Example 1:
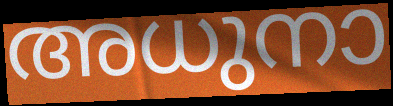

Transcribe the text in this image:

അധുനാ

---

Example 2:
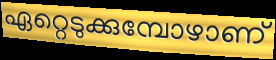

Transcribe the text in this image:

ഏറ്റെടുക്കുമ്പോഴാണ്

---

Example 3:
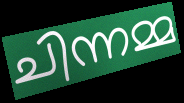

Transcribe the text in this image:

ചിന്നമ്മ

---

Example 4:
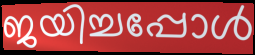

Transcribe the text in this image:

ജയിച്ചപ്പോൾ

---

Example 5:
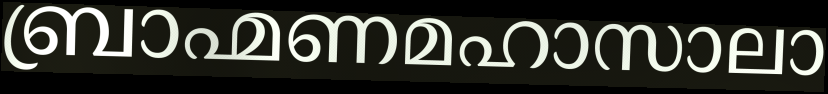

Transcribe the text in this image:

ബ്രാഹ്മണമഹാസാലാ